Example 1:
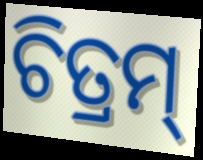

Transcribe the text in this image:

ଚିତ୍ରମ୍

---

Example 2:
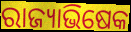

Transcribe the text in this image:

ରାଜ୍ୟାଭିଷେକ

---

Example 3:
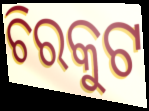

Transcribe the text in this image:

ଚିରକୁଟ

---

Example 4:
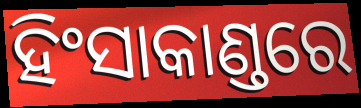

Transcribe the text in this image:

ହିଂସାକାଣ୍ଡରେ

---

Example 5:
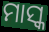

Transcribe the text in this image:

ମାସ୍କ